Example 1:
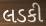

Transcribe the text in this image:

લડકી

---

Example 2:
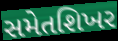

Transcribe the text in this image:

સમેતશિખર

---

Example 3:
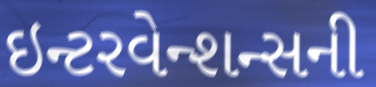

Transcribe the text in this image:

ઇન્ટરવેન્શન્સની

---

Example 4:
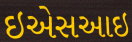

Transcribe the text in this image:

ઇએસઆઇ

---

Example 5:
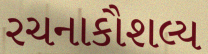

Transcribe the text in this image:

રચનાકૌશલ્ય